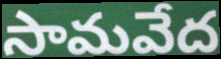
సామవేద